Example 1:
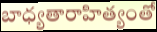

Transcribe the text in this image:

బాధ్యతారాహిత్యంతో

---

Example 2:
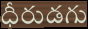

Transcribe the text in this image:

ధీరుడగు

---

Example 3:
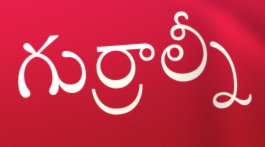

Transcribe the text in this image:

గుర్రాల్నీ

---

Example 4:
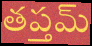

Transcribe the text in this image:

తప్తమ్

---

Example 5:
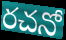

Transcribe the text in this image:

రచనో